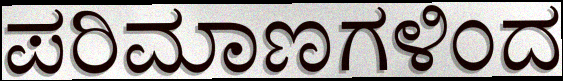
ಪರಿಮಾಣಗಳಿಂದ